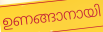
ഉണങ്ങാനായി